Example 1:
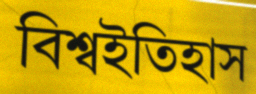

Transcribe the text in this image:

বিশ্বইতিহাস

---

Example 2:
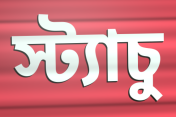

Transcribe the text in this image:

স্ট্যাচু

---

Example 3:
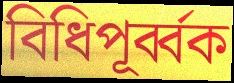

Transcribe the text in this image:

বিধিপূর্ব্বক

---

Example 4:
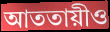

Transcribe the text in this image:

আততায়ীও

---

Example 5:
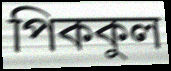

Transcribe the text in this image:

পিককুল